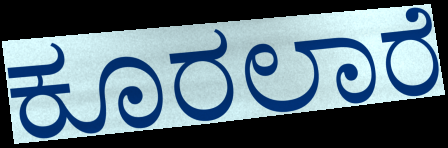
ಕೂರಲಾರೆ